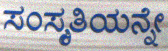
ಸಂಸ್ಕೃತಿಯನ್ನೇ